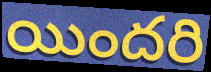
యిందరి